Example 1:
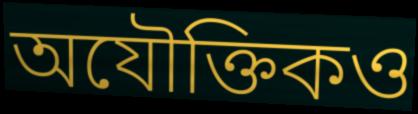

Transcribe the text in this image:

অযৌক্তিকও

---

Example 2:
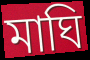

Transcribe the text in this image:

মাঘি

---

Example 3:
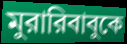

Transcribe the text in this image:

মুরারিবাবুকে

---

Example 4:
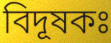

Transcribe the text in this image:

বিদূষকঃ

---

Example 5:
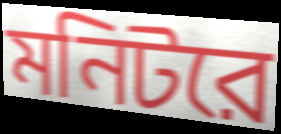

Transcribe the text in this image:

মনিটরে